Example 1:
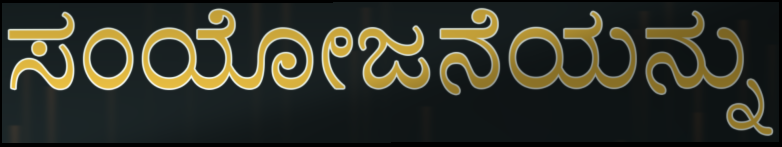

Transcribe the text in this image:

ಸಂಯೋಜನೆಯನ್ನು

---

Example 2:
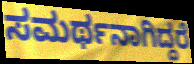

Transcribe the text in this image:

ಸಮರ್ಥನಾಗಿದ್ದರೆ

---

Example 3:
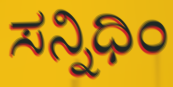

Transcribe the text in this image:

ಸನ್ನಿಧಿಂ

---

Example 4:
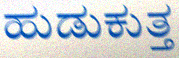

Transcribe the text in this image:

ಹುಡುಕುತ್ತ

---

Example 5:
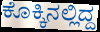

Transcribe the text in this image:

ಕೊಕ್ಕಿನಲ್ಲಿದ್ದ